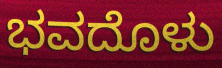
ಭವದೊಳು